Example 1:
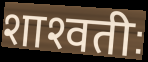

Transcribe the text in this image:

शाश्वतीः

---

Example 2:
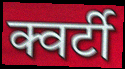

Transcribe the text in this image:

क्वर्टी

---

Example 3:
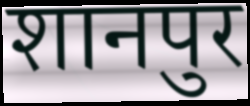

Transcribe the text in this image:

शानपुर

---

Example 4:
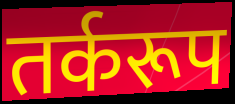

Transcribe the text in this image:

तर्करूप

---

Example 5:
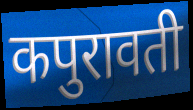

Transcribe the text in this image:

कपुरावती